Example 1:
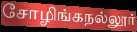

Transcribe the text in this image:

சோழிங்கநல்லூர்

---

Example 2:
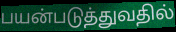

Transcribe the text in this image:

பயன்படுத்துவதில்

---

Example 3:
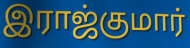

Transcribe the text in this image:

இராஜ்குமார்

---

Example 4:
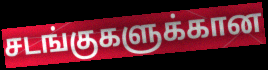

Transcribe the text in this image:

சடங்குகளுக்கான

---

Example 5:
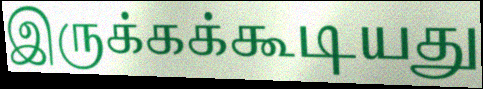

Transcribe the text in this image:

இருக்கக்கூடியது